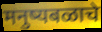
मनुष्यबळाचे